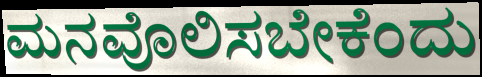
ಮನವೊಲಿಸಬೇಕೆಂದು